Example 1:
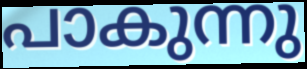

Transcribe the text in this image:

പാകുന്നു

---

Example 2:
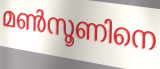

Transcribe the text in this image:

മൺസൂണിനെ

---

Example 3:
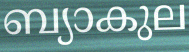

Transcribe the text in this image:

ബ്യാകുല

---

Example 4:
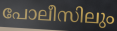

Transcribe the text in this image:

പോലീസിലും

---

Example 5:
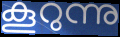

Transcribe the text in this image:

കൂറുന്നു